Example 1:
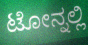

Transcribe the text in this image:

ಟೋನ್ನಲ್ಲಿ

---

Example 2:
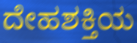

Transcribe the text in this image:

ದೇಹಶಕ್ತಿಯ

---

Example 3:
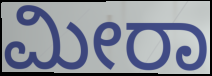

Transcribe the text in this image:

ಮೀರಾ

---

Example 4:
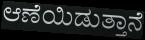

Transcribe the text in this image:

ಆಣೆಯಿಡುತ್ತಾನೆ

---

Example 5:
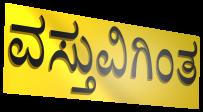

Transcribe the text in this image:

ವಸ್ತುವಿಗಿಂತ